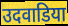
उदवाडिया